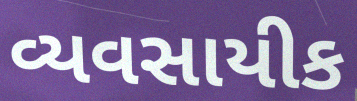
વ્યવસાયીક